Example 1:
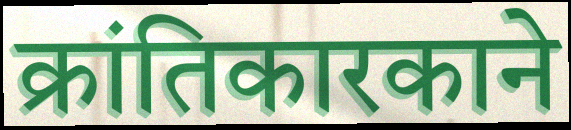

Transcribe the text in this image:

क्रांतिकारकाने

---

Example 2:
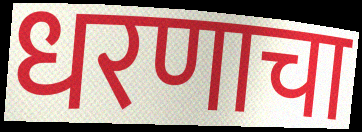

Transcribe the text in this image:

धरणाचा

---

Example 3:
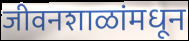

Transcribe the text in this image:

जीवनशाळांमधून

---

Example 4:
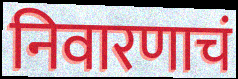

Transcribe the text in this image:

निवारणाचं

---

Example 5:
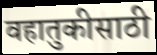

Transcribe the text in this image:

वहातुकीसाठी